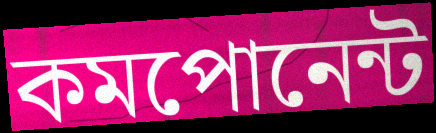
কমপোনেন্ট